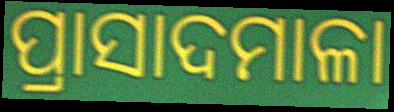
ପ୍ରାସାଦମାଳା